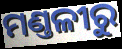
ମଣ୍ତଳୀରୁ